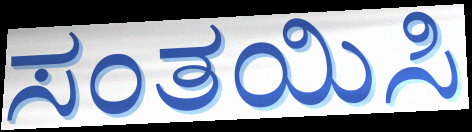
ಸಂತಯಿಸಿ